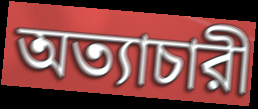
অত্যাচারী